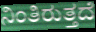
ನಿಂತಿರುತ್ತದೆ